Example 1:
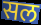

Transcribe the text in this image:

सल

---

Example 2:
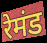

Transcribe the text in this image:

रेमंड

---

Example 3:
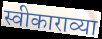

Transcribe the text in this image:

स्वीकाराव्या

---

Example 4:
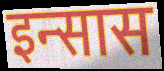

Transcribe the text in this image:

इन्सास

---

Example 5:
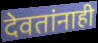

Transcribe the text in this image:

देवतांनाही